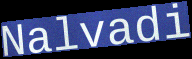
Nalvadi